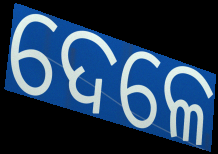
ଦେଳେ